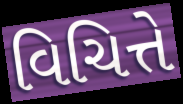
વિચિત્તે